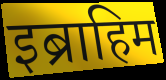
इब्राहिम